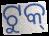
ଟୁକ୍